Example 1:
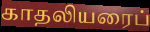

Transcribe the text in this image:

காதலியரைப்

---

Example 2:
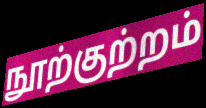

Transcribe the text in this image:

நூற்குற்றம்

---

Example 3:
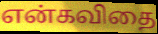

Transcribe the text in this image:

என்கவிதை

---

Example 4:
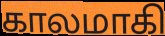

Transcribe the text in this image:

காலமாகி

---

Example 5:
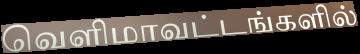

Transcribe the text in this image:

வெளிமாவட்டங்களில்